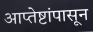
आप्तेष्टांपासून